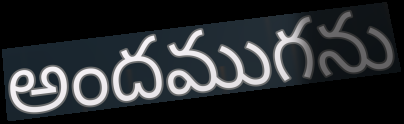
అందముగను